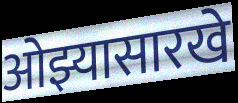
ओझ्यासारखे